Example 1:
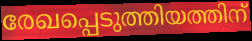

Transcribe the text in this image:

രേഖപ്പെടുത്തിയത്തിന്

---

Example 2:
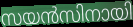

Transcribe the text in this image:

സയൻസിനായി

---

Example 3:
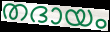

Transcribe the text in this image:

തദായം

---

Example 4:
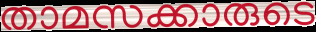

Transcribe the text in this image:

താമസക്കാരുടെ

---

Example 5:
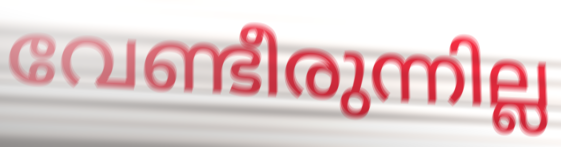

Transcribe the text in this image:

വേണ്ടീരുന്നില്ല